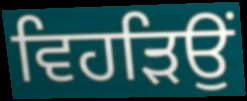
ਵਿਹੜਿਉਂ